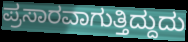
ಪ್ರಸಾರವಾಗುತ್ತಿದ್ದುದು